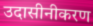
उदासीनीकरण